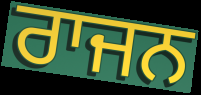
ਰਾਜਨ